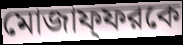
মোজাফ্ফরকে